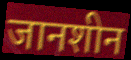
जानशीन